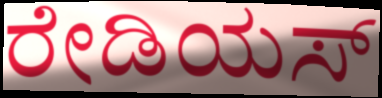
ರೇಡಿಯಸ್